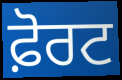
ਫ਼ੋਰਟ